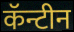
कॅन्टीन